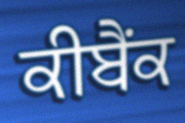
ਕੀਬੈਂਕ